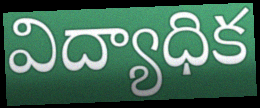
విద్యాధిక